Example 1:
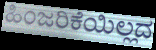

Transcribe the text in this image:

ಹಿಂಜರಿಕೆಯಿಲ್ಲದ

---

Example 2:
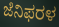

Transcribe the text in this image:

ಜೆನಿಫರಳ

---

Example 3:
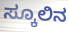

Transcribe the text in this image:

ಸ್ಕೂಲಿನ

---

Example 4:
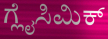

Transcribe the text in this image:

ಗ್ಲೈಸಿಮಿಕ್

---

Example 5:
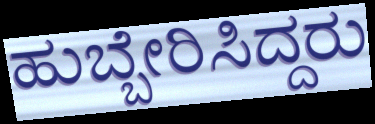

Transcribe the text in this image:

ಹುಬ್ಬೇರಿಸಿದ್ದರು